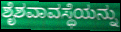
ಶೈಶವಾವಸ್ಥೆಯನ್ನು